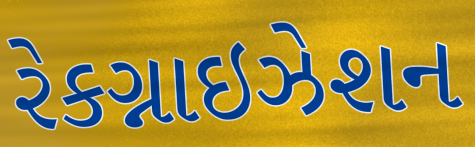
રેકગ્નાઇઝેશન